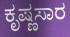
ಕೃಷ್ಣಸಾರ